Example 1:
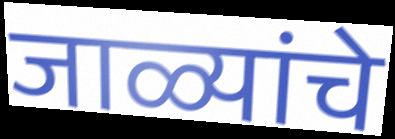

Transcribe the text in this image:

जाळ्यांचे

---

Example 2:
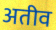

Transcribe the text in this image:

अतीव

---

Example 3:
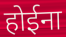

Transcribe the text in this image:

होईना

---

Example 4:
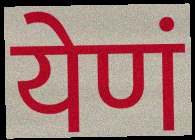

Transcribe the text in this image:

येणं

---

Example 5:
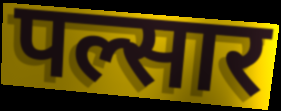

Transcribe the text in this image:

पल्सार